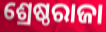
ଶ୍ରେଷ୍ଠରାଜା